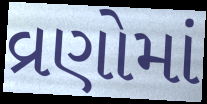
વ્રણોમાં